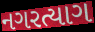
નગરત્યાગ